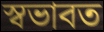
স্বভাবত